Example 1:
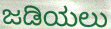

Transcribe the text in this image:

ಜಡಿಯಲು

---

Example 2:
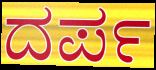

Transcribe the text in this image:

ದರ್ಪ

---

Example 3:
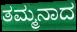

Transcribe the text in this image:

ತಮ್ಮನಾದ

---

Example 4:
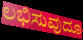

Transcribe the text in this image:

ಲಭಿಸುವುದೂ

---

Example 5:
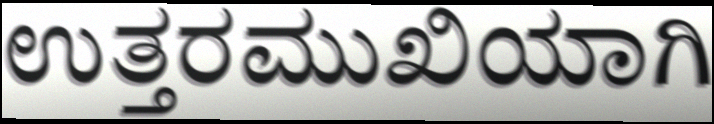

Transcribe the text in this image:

ಉತ್ತರಮುಖಿಯಾಗಿ